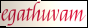
egathuvam